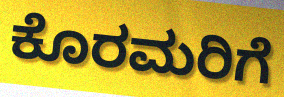
ಕೊರಮರಿಗೆ